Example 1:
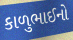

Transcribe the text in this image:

કાળુભાઈનો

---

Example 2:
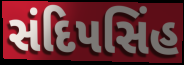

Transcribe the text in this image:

સંદિપસિંહ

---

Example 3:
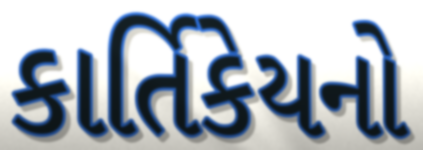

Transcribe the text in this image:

કાર્તિકેયનો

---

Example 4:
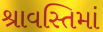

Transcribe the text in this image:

શ્રાવસ્તિમાં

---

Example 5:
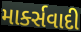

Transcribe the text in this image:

માર્ક્સવાદી